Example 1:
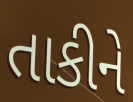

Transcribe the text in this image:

તાકીને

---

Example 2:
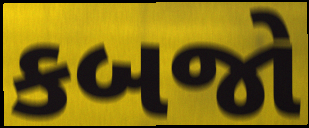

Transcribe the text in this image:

કબજો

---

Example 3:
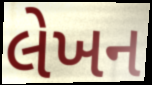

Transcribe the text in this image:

લેખન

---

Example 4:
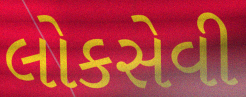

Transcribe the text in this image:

લોકસેવી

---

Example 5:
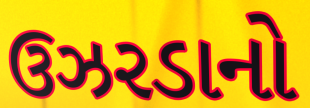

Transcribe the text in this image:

ઉઝરડાનો